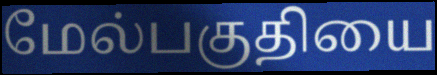
மேல்பகுதியை